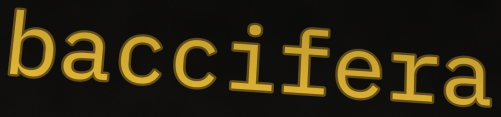
baccifera